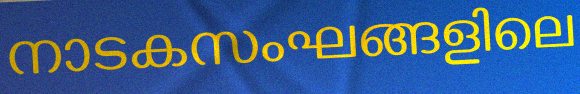
നാടകസംഘങ്ങളിലെ